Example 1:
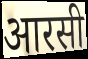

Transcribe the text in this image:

आरसी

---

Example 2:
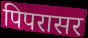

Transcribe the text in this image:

पिपरासर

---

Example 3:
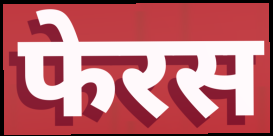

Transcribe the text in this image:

फेरस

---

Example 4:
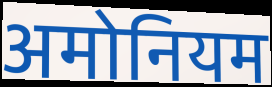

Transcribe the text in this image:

अमोनियम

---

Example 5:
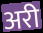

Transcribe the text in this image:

अरी